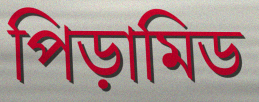
পিড়ামিড